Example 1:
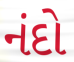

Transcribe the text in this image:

નંદો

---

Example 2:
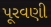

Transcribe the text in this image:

પૂરવણી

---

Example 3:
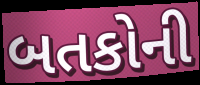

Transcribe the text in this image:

બતકોની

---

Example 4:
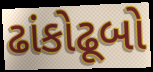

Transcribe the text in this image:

ઢાંકોઢૂબો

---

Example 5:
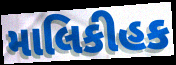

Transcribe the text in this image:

માલિકીહક